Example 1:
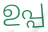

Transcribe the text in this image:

ഉപ്പ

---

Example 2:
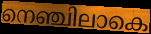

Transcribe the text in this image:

നെഞ്ചിലാകെ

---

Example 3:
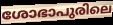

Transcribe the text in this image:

ശോഭാപുരിലെ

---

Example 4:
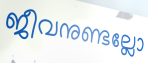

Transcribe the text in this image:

ജീവനുണ്ടല്ലോ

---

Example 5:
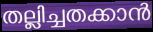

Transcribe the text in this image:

തല്ലിച്ചതക്കാൻ